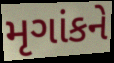
મૃગાંકને